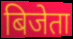
बिजेता